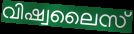
വിഷ്വലൈസ്